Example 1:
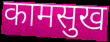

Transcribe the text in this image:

कामसुख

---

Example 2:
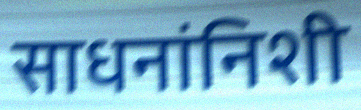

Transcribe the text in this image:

साधनांनिशी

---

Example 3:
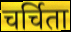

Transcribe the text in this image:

चर्चिता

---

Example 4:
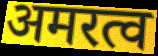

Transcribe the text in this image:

अमरत्व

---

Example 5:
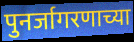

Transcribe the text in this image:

पुनर्जागरणाच्या